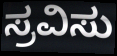
ಸ್ರವಿಸು